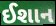
ઈશાન